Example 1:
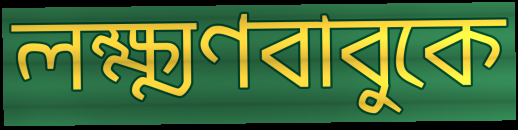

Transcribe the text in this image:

লক্ষ্মণবাবুকে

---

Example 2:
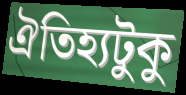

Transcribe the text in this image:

ঐতিহ্যটুকু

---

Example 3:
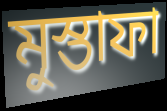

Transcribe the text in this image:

মুস্তাফা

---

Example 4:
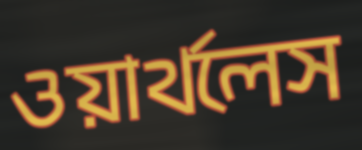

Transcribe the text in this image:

ওয়ার্থলেস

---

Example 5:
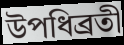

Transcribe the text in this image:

উপধিব্রতী